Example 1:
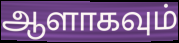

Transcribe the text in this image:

ஆளாகவும்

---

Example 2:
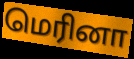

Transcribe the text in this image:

மெரினா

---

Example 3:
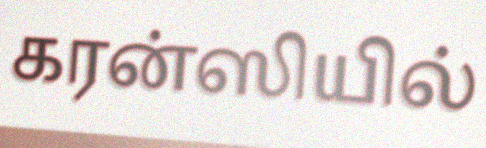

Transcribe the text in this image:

கரன்ஸியில்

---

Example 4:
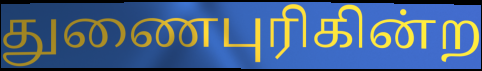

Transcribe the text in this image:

துணைபுரிகின்ற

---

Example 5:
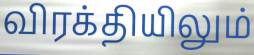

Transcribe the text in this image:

விரக்தியிலும்